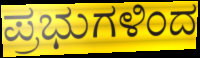
ಪ್ರಭುಗಳಿಂದ